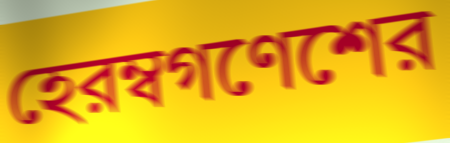
হেরম্বগণেশের